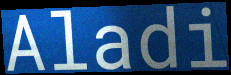
Aladi